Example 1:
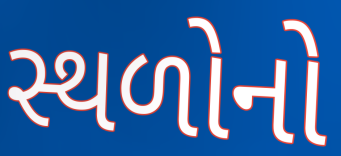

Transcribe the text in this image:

સ્થળોનો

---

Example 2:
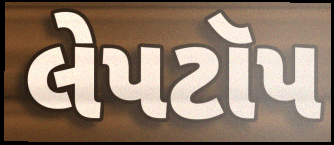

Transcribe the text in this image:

લેપટૉપ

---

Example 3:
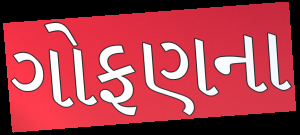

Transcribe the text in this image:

ગોફણના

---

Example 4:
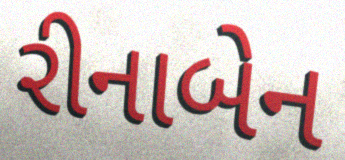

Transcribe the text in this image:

રીનાબેન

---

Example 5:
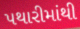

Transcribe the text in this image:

પથારીમાંથી